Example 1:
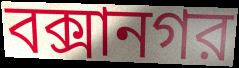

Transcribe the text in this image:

বক্সানগর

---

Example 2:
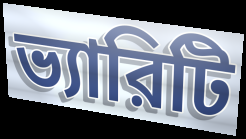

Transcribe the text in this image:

ভ্যারিটি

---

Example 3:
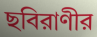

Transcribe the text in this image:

ছবিরাণীর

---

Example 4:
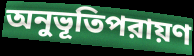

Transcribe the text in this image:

অনুভূতিপরায়ণ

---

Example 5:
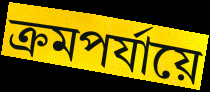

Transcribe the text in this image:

ক্রমপর্যায়ে